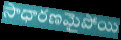
సాధారణమైపోయి